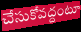
చేసుకోవద్దంటూ